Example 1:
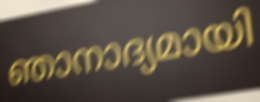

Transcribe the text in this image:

ഞാനാദ്യമായി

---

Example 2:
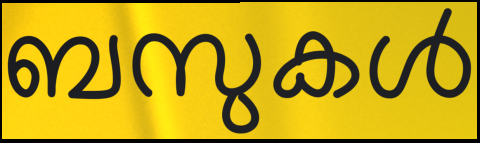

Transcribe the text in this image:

ബസുകൾ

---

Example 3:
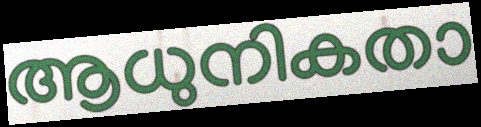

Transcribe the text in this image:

ആധുനികതാ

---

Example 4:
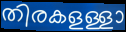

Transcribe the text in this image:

തിരകളള്ളാ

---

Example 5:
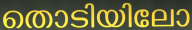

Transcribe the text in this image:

തൊടിയിലോ